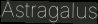
Astragalus